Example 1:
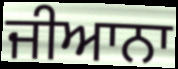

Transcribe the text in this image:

ਜੀਆਨਾ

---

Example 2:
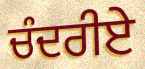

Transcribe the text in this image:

ਚੰਦਰੀਏ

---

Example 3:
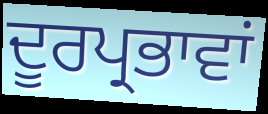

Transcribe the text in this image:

ਦੂਰਪ੍ਰਭਾਵਾਂ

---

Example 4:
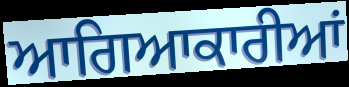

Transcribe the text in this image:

ਆਗਿਆਕਾਰੀਆਂ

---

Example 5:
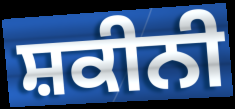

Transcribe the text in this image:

ਸ਼ਕੀਨੀ